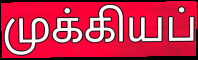
முக்கியப்